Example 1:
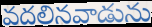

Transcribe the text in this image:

వదలినవాడును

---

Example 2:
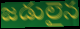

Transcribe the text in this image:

జడులైన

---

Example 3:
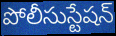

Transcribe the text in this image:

పోలీసుస్టేషన్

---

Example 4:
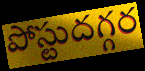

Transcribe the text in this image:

పోస్టుదగ్గర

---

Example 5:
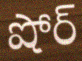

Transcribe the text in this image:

షోర్